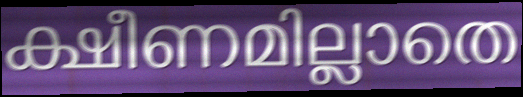
ക്ഷീണമില്ലാതെ